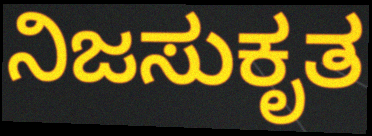
ನಿಜಸುಕೃತ